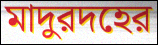
মাদুরদহের